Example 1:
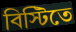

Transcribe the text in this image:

বিস্টিতে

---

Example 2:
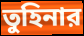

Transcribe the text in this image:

তুহিনার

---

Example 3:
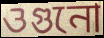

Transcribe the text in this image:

ওগুনো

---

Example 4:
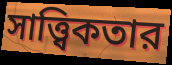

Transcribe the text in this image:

সাত্ত্বিকতার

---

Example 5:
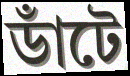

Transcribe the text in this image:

ডাঁটে